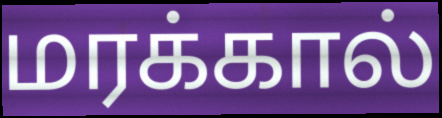
மரக்கால்